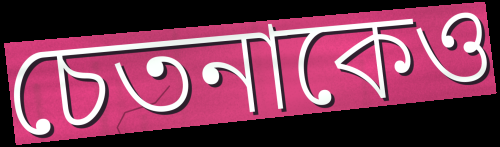
চেতনাকেও